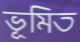
ভূমিত